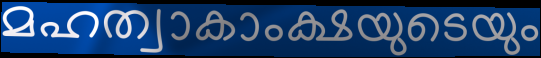
മഹത്വാകാംക്ഷയുടെയും